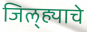
जिल्ह्याचे